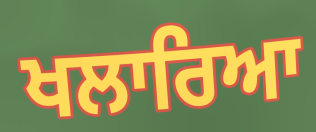
ਖਲਾਰਿਆ